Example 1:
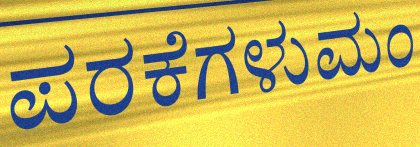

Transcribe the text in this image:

ಪರಕೆಗಳುಮಂ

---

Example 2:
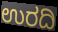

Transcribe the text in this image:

ಉರದಿ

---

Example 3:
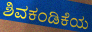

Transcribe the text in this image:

ಶಿವಕಂಡಿಕೆಯ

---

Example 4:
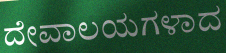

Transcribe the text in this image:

ದೇವಾಲಯಗಳಾದ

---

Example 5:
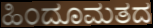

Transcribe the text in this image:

ಹಿಂದೂಮತದ